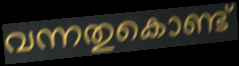
വന്നതുകൊണ്ട്